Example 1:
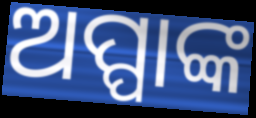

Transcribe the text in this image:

ଅପ୍ପାଙ୍କ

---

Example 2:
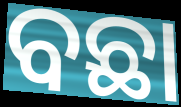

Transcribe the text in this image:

ବଛା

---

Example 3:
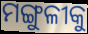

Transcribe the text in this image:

ମଙ୍ଗୁଳୀକୁ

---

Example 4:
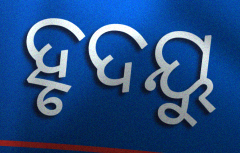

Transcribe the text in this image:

ହୃଦୟୁ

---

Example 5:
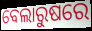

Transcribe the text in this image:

ବେଲାରୁଷରେ